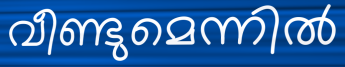
വീണ്ടുമെന്നിൽ